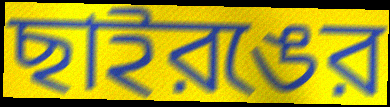
ছাইরঙের